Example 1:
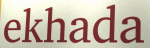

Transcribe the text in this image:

ekhada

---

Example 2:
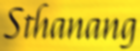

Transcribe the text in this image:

Sthanang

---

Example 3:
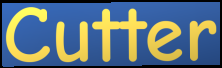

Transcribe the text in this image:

Cutter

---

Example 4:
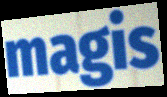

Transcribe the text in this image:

magis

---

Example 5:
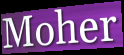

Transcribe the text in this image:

Moher